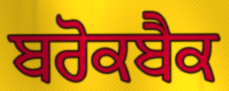
ਬਰੋਕਬੈਕ